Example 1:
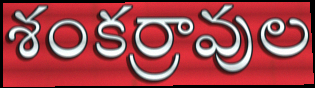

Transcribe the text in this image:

శంకర్రావుల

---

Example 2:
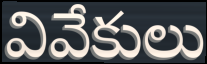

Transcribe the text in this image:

వివేకులు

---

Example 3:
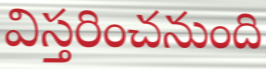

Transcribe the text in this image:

విస్తరించనుంది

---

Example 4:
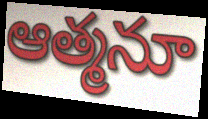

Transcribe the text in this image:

ఆత్మనూ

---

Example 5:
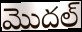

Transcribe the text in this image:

మొదల్